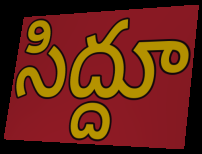
సిద్దూ